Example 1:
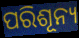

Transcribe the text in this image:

ପରିଶୂନ୍ୟ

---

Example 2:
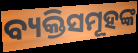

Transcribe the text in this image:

ବ୍ୟକ୍ତିସମୂହଙ୍କ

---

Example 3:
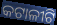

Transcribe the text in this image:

କଟାଳୀଟି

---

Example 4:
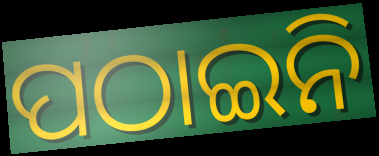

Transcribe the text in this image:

ପଠାଇନି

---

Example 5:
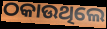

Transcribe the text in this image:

ଠକାଉଥିଲେ